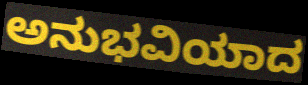
ಅನುಭವಿಯಾದ